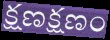
క్షణక్షణం